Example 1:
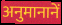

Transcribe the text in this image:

अनुमानानें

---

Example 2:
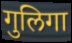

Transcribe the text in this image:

गुलिगा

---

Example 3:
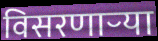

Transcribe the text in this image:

विसरणाऱ्या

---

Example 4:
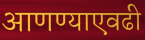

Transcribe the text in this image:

आणण्याएवढी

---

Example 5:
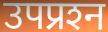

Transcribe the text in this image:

उपप्रश्‍न